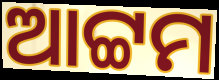
ଆଟ୍ଟମ